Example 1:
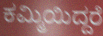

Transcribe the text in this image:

ಕಮ್ಮಿಯಿದ್ದರೆ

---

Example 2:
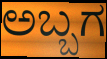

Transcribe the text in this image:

ಅಬ್ಬಗ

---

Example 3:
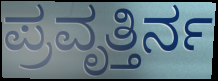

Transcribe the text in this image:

ಪ್ರವೃತ್ತಿರ್ನ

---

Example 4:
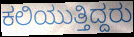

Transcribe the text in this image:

ಕಲಿಯುತ್ತಿದ್ದರು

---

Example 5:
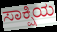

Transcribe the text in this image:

ಸಾಕ್ಷಿಯ